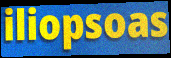
iliopsoas